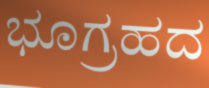
ಭೂಗ್ರಹದ